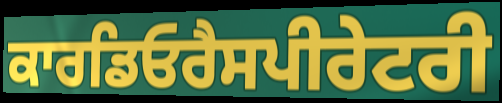
ਕਾਰਡਿਓਰੈਸਪੀਰੇਟਰੀ